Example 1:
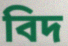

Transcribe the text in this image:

বিদ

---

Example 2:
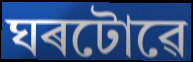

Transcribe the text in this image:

ঘৰটোৱে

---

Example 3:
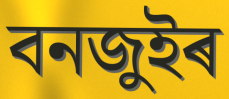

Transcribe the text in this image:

বনজুইৰ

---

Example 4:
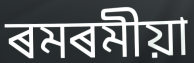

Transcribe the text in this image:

ৰমৰমীয়া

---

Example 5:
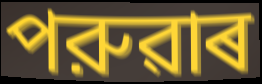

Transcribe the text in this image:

পৰুৱাৰ